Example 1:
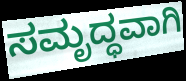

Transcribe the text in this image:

ಸಮೃದ್ಧವಾಗಿ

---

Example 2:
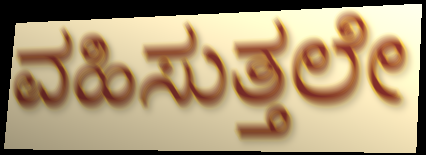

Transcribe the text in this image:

ವಹಿಸುತ್ತಲೇ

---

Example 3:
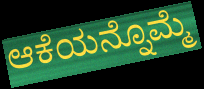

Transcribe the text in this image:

ಆಕೆಯನ್ನೊಮ್ಮೆ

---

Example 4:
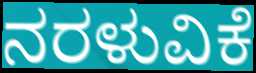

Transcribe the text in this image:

ನರಳುವಿಕೆ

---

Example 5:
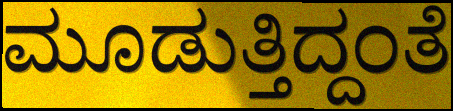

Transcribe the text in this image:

ಮೂಡುತ್ತಿದ್ದಂತೆ